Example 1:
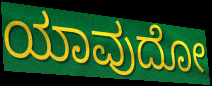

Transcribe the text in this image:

ಯಾವುದೋ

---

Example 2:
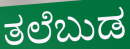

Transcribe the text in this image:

ತಲೆಬುಡ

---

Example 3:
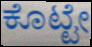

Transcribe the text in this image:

ಕೊಟ್ಟೇ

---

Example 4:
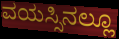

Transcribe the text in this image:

ವಯಸ್ಸಿನಲ್ಲೂ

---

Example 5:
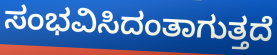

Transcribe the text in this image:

ಸಂಭವಿಸಿದಂತಾಗುತ್ತದೆ